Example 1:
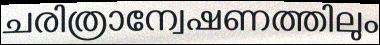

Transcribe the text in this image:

ചരിത്രാന്വേഷണത്തിലും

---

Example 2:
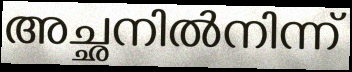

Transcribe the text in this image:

അച്ഛനിൽനിന്ന്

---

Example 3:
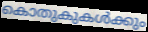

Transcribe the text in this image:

കൊതുകുകൾക്കും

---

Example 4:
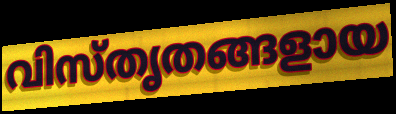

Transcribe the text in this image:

വിസ്തൃതങ്ങളായ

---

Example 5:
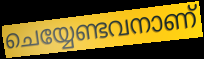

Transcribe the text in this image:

ചെയ്യേണ്ടവനാണ്